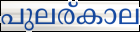
പുലര്കാല